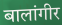
बालांगीर